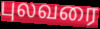
புலவரை